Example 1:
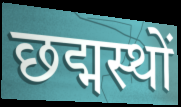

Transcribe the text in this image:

छद्मस्थों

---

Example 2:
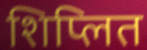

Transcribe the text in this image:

शिप्लित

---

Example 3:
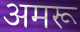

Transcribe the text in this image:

अमरू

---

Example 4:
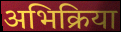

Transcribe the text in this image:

अभिक्रिया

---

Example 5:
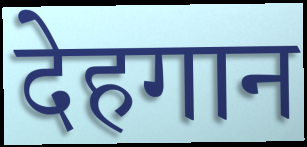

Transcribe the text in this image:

देहगान